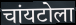
चांयटोला